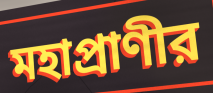
মহাপ্রাণীর